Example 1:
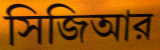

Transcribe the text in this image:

সিজিআর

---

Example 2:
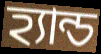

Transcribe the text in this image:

হ্যান্ড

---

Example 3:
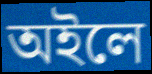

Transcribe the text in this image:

অইলে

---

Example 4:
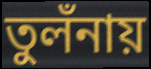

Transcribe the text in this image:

তুলঁনায়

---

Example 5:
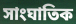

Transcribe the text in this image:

সাংঘাতিক